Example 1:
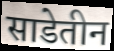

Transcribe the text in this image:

साडेतीन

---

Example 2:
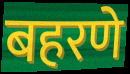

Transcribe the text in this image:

बहरणे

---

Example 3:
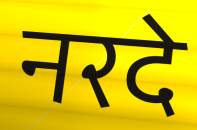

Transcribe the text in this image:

नरदे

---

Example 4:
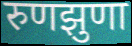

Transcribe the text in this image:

रुणझुणा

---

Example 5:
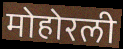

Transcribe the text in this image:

मोहोरली